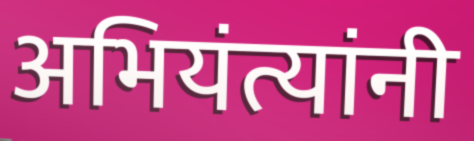
अभियंत्यांनी